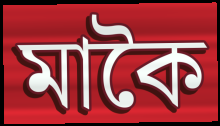
মাকৈ